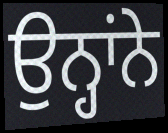
ਉਨ੍ਹਾਂਨੇ